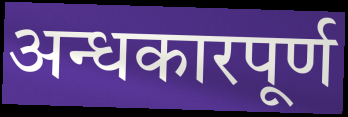
अन्धकारपूर्ण